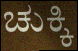
ಚುಕ್ಕಿ